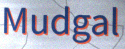
Mudgal